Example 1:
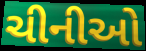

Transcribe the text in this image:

ચીનીઓ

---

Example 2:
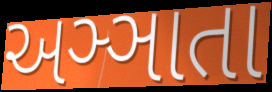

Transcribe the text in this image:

અઞ્ઞાતા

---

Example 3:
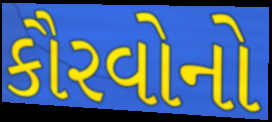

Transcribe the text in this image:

કૌરવોનો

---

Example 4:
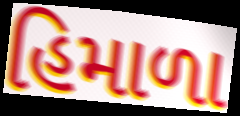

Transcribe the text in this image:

હિમાળા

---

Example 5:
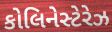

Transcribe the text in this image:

કોલિનેસ્ટેરેઝ